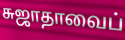
சுஜாதாவைப்